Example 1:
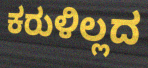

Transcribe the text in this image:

ಕರುಳಿಲ್ಲದ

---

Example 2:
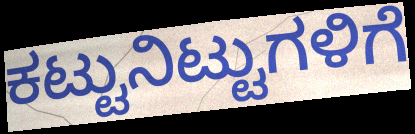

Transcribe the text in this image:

ಕಟ್ಟುನಿಟ್ಟುಗಳಿಗೆ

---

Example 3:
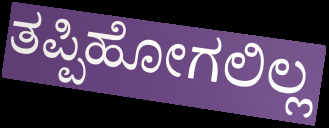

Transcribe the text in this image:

ತಪ್ಪಿಹೋಗಲಿಲ್ಲ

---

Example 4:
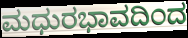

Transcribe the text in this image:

ಮಧುರಭಾವದಿಂದ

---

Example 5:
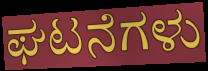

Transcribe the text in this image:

ಘಟನೆಗಳು